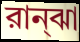
রান্ঝা